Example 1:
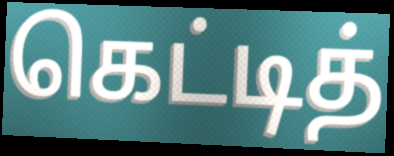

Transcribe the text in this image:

கெட்டித்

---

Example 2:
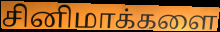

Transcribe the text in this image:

சினிமாக்களை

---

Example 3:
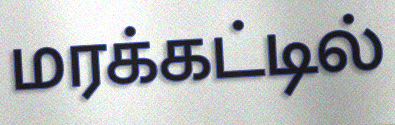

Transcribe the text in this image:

மரக்கட்டில்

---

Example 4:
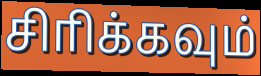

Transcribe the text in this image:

சிரிக்கவும்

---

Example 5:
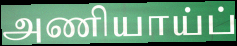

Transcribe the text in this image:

அணியாய்ப்